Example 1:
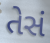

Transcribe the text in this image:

તેસં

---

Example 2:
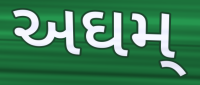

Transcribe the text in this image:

અઘમ્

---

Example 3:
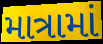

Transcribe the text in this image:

માત્રામાં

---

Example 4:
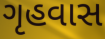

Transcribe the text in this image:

ગૃહવાસ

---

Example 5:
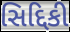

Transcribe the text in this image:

સિદ્દિકી